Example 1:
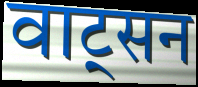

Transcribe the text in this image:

वाट्सन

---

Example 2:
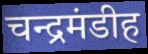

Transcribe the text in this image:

चन्द्रमंडीह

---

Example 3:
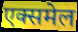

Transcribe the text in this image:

एक्समेल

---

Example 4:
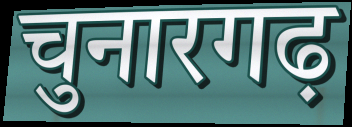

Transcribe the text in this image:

चुनारगढ़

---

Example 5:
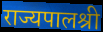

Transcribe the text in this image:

राज्यपालश्री